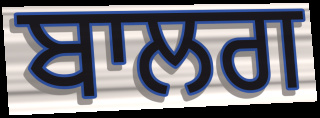
ਬਾਲਗ